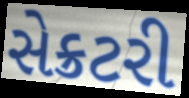
સેક્રટરી